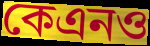
কেএনও